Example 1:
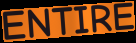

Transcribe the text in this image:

ENTIRE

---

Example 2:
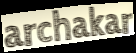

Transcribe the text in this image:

archakar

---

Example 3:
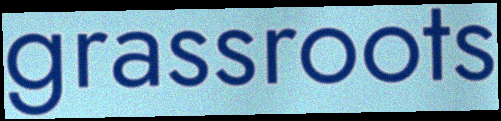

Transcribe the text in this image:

grassroots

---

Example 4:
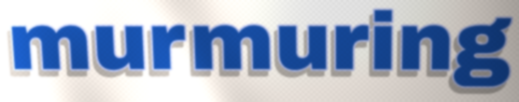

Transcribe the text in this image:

murmuring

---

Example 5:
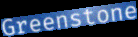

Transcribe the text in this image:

Greenstone